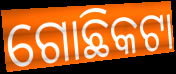
ଗୋଛିକଟା